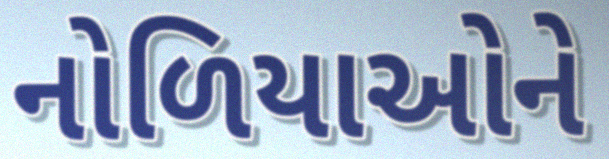
નોળિયાઓને